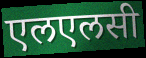
एलएलसी